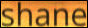
shane